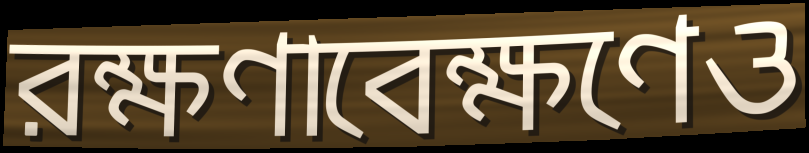
রক্ষণাবেক্ষণেও